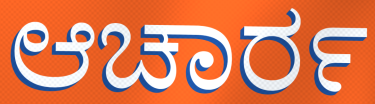
ಆಚಾರ್ರ